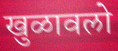
खुळावलो